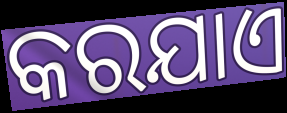
କରଯାଏ